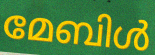
മേബിൾ